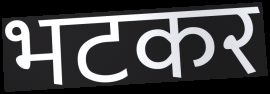
भटकर